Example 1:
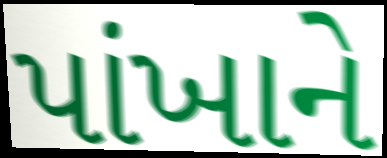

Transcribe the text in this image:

પાંખાને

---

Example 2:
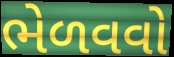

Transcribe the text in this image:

ભેળવવો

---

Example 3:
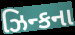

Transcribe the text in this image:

ઝિન્કના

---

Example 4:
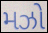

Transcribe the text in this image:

મઝો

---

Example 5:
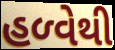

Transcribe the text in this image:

હળ્વેથી